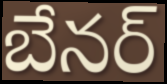
బేనర్